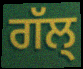
ਗੱਲ੍